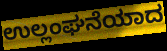
ಉಲ್ಲಂಘನೆಯಾದ